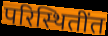
परिस्थितींत